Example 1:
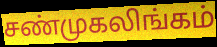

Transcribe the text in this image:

சண்முகலிங்கம்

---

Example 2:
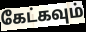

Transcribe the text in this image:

கேட்கவும்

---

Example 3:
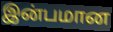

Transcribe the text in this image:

இன்பமான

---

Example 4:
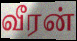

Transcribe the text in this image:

வீரன்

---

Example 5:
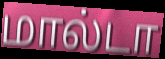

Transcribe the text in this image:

மால்டா